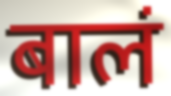
बालं